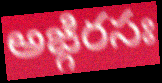
అఙ్గిరసః